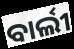
ବାର୍ଲୀ